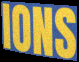
IONS